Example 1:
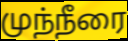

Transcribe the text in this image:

முந்நீரை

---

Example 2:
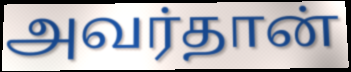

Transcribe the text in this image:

அவர்தான்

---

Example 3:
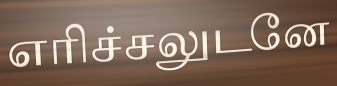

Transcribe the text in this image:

எரிச்சலுடனே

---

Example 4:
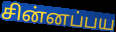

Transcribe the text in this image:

சின்னப்பய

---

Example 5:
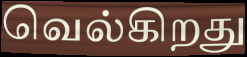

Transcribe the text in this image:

வெல்கிறது